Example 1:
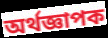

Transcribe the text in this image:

অর্থজ্ঞাপক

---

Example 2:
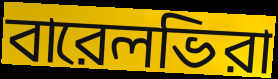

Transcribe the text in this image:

বারেলভিরা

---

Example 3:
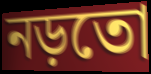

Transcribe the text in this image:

নড়তো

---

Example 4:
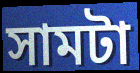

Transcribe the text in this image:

সামটা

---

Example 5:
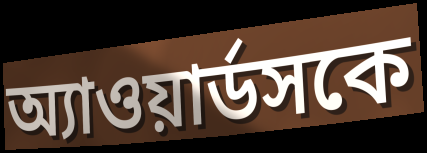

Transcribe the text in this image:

অ্যাওয়ার্ডসকে